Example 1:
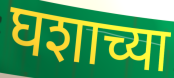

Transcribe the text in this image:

घशाच्या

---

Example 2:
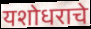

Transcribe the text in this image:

यशोधराचे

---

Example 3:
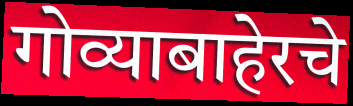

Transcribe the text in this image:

गोव्याबाहेरचे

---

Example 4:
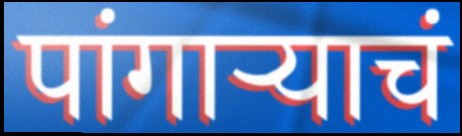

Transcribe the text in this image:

पांगाऱ्याचं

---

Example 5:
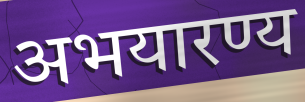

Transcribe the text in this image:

अभयारण्य